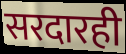
सरदारही